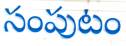
సంపుటం